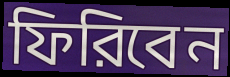
ফিরিবেন